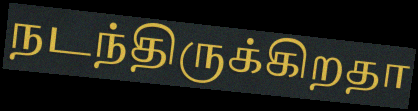
நடந்திருக்கிறதா